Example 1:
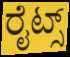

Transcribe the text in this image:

ರೈಟ್ಸ್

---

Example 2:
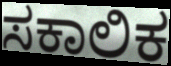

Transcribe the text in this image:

ಸಕಾಲಿಕ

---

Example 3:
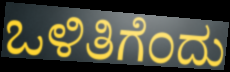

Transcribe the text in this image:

ಒಳಿತಿಗೆಂದು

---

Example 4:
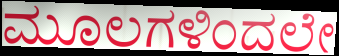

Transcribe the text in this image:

ಮೂಲಗಳಿಂದಲೇ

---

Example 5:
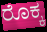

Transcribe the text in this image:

ರೊಕ್ಕ